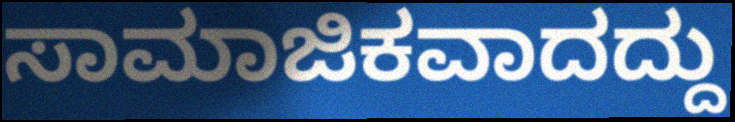
ಸಾಮಾಜಿಕವಾದದ್ದು